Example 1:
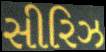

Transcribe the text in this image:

સીરિઝ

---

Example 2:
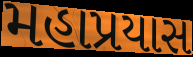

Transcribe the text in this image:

મહાપ્રયાસ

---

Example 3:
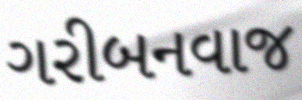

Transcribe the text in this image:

ગરીબનવાજ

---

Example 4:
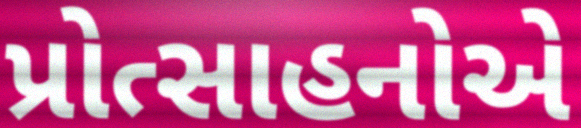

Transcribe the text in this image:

પ્રોત્સાહનોએ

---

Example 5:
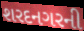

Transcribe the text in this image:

શરદનગરની